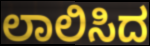
ಲಾಲಿಸಿದ